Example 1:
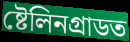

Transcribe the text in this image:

ষ্টেলিনগ্ৰাডত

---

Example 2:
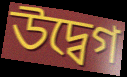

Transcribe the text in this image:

উদ্বেগ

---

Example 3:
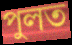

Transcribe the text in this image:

পুলত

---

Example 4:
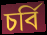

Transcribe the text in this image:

চৰ্বি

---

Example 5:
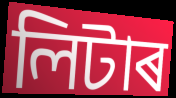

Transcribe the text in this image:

লিটাৰ